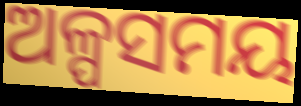
ଅଳ୍ପସମୟ